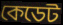
কেডেট